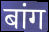
बांग